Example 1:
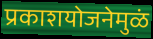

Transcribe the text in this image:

प्रकाशयोजनेमुळं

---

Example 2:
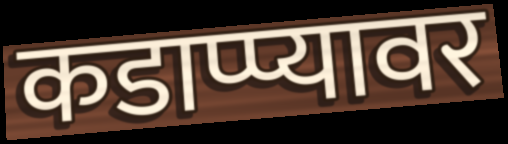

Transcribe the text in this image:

कडाप्प्यावर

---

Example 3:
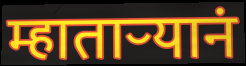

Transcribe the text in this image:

म्हाताऱ्यानं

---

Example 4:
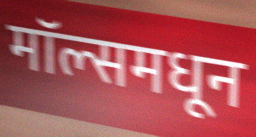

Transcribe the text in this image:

मॉल्समधून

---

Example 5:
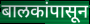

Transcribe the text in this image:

बालकांपासून